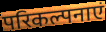
परिकल्पनाएं